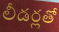
లీడర్లతో